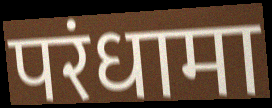
परंधामा